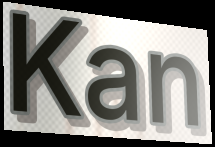
Kan